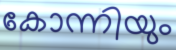
കോന്നിയും